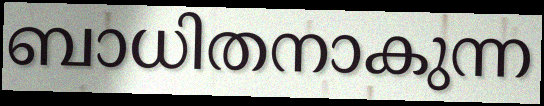
ബാധിതനാകുന്ന